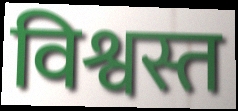
विश्वस्त